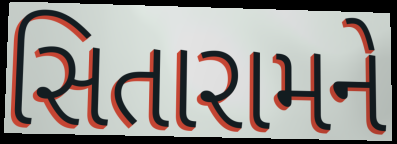
સિતારામને